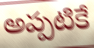
అప్పటికే